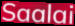
Saalai